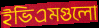
ইভিএমগুলো